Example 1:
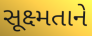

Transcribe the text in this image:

સૂક્ષ્મતાને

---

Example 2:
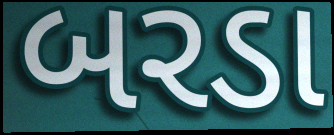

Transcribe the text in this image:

બરડા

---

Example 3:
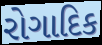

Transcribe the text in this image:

રોગાદિક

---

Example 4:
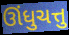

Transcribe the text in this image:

ઊંધુચત્તુ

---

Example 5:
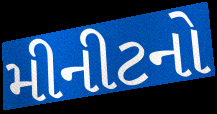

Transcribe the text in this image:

મીનીટનો